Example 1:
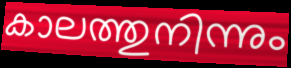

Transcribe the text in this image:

കാലത്തുനിന്നും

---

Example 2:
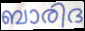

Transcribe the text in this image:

ബാരിദ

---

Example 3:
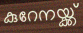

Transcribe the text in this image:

കുറേനയ്ക്ക്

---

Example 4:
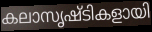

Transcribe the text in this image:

കലാസൃഷ്ടികളായി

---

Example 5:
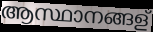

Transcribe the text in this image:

ആസ്ഥാനങ്ങള്